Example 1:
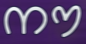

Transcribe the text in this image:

നൗ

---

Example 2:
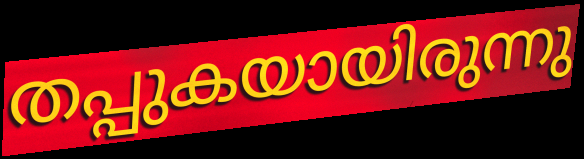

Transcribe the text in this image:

തപ്പുകയായിരുന്നു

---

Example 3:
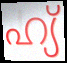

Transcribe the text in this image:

ഹ്യ്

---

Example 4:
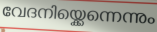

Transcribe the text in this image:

വേദനിയ്ക്കെന്നെന്നും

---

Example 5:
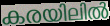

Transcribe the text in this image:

കരയിലിൽ